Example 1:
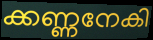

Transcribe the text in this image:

ക്കണ്ണനേകി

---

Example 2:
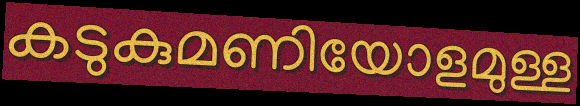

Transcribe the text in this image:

കടുകുമണിയോളമുള്ള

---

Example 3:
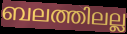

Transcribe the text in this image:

ബലത്തിലല്ല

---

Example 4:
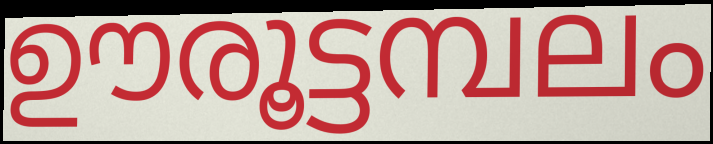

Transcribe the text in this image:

ഊരൂട്ടമ്പലം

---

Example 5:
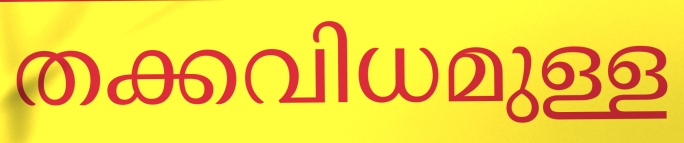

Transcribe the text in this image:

തക്കവിധമുള്ള